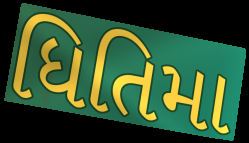
ધિતિમા